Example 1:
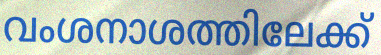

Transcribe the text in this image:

വംശനാശത്തിലേക്ക്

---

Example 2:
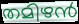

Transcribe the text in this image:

തമിഴൻ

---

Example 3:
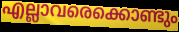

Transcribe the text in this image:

എല്ലാവരെക്കൊണ്ടും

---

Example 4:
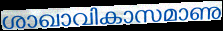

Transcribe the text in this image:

ശാഖാവികാസമാണു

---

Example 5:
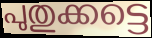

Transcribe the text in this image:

പുതുക്കട്ടെ